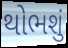
થોભશું